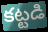
కట్టడి